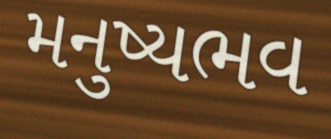
મનુષ્યભવ